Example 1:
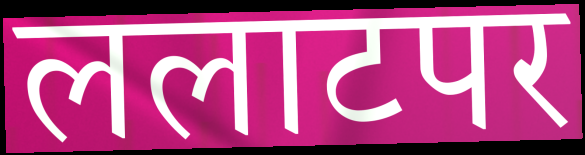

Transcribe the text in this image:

ललाटपर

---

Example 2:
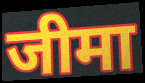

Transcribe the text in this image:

जीमा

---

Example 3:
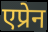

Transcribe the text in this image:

एप्रेन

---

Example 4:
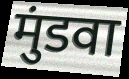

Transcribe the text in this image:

मुंडवा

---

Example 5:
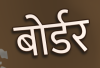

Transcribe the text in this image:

बोर्डर